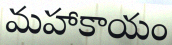
మహాకాయం